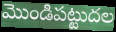
మొండిపట్టుదల